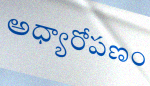
అధ్యారోపణం